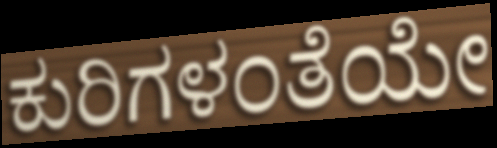
ಕುರಿಗಳಂತೆಯೇ